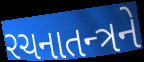
રચનાતન્ત્રને